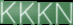
KKKN